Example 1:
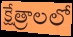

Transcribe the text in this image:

క్షేత్రాలలో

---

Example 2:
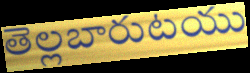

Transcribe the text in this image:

తెల్లబారుటయు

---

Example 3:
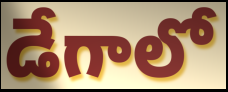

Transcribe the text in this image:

డేగాలో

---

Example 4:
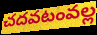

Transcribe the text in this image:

చదవటంవల్ల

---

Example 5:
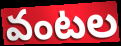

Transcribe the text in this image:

వంటల